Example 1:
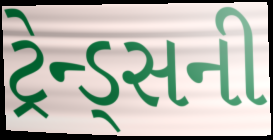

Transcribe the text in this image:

ટ્રેન્ડ્સની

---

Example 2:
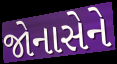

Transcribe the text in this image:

જોનાસેને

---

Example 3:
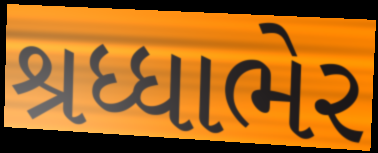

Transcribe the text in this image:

શ્રધ્ધાભેર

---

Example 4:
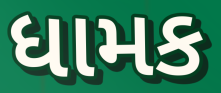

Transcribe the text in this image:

ધામક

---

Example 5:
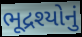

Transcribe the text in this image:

ભૂદ્રશ્યોનું